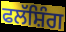
ਫਲੱਸ਼ਿੰਗ